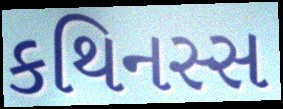
કથિનસ્સ